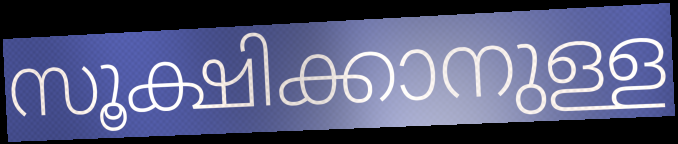
സൂക്ഷിക്കാനുള്ള